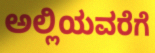
ಅಲ್ಲಿಯವರೆಗೆ